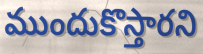
ముందుకొస్తారని